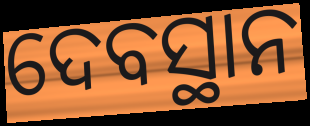
ଦେବସ୍ଥାନ